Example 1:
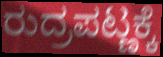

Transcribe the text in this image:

ರುದ್ರಪಟ್ಣಕ್ಕೆ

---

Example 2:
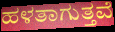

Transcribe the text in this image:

ಹಳತಾಗುತ್ತವೆ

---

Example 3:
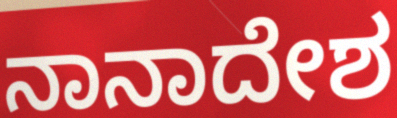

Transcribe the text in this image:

ನಾನಾದೇಶ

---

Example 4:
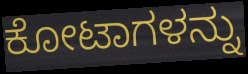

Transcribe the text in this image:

ಕೋಟಾಗಳನ್ನು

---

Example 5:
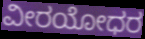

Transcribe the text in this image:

ವೀರಯೋಧರ